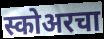
स्कोअरचा